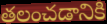
తలంచడానికి